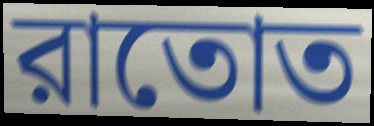
রাতোত